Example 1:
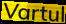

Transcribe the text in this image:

Vartul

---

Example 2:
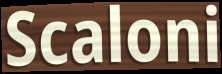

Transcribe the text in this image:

Scaloni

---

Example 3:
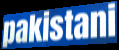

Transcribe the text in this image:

pakistani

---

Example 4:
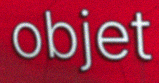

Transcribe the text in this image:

objet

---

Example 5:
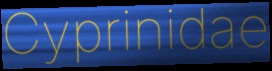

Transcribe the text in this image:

Cyprinidae